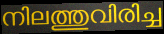
നിലത്തുവിരിച്ച